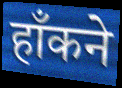
हाँकने